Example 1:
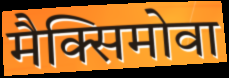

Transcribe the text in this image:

मैक्सिमोवा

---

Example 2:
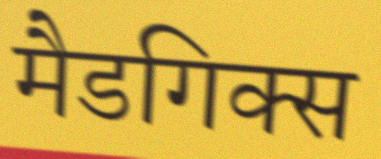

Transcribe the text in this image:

मैडगिक्स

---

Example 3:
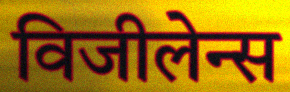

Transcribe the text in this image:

विजीलेन्स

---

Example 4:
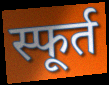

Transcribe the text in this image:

स्फूर्त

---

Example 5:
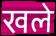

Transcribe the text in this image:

खले